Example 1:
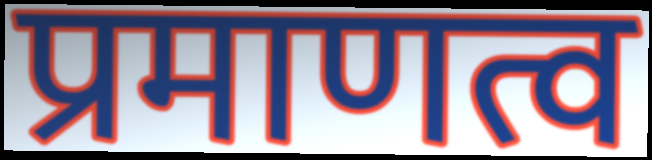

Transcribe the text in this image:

प्रमाणत्व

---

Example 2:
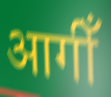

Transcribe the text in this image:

आगीँ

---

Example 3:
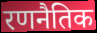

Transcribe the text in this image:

रणनैतिक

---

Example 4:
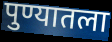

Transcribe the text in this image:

पुण्यातला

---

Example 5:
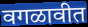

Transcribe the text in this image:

वगळावीत